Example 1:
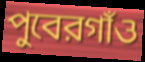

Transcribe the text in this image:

পুবেরগাঁও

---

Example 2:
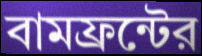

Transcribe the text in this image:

বামফ্রন্টের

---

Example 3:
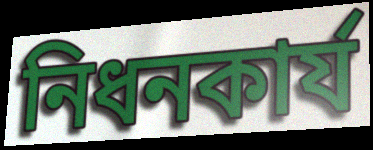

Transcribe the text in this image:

নিধনকার্য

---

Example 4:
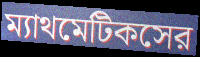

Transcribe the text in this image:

ম্যাথমেটিকসের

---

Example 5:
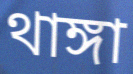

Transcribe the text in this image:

থাঙ্গা